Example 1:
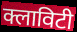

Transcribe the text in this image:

क्लाविटी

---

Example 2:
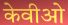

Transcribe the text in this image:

केवीओ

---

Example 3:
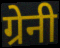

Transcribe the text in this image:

ग्रेनी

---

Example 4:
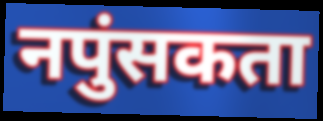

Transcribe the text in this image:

नपुंसकता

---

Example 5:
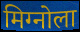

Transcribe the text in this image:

मिग्नोला